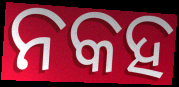
ନକହ